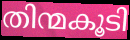
തിന്മകൂടി